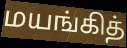
மயங்கித்